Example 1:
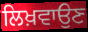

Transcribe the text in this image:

ਲਿਖ਼ਵਾਉਣ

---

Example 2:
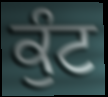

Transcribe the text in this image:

ਕੁੰਟ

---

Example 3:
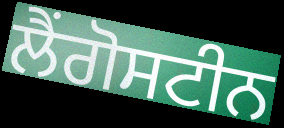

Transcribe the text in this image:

ਲੈਂਗੋਸਟੀਨ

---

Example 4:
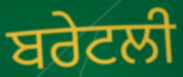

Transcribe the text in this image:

ਬਰੇਟਲੀ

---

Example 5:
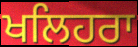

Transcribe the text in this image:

ਖਲਿਹਰਾ